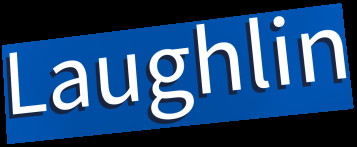
Laughlin